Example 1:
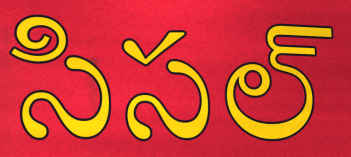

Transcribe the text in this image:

సిసల్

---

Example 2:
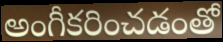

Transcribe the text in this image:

అంగీకరించడంతో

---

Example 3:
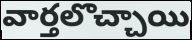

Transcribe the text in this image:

వార్తలొచ్చాయి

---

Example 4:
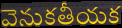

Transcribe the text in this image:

వెనుకతీయక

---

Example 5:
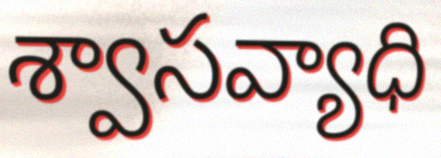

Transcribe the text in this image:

శ్వాసవ్యాధి